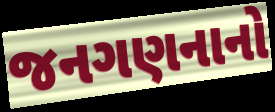
જનગણનાનો